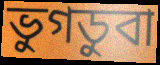
ভুগডুবা